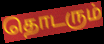
தொடரும்